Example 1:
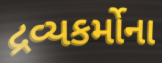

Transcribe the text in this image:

દ્રવ્યકર્મોના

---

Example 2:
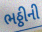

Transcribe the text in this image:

ભઠ્ઠીની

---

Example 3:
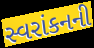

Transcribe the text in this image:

સ્વરાંકનની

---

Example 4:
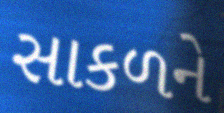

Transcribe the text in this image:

સાકળને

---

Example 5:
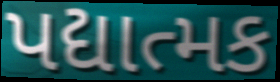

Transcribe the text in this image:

પદ્યાત્મક